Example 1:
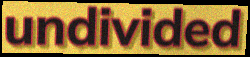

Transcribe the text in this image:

undivided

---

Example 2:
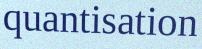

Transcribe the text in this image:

quantisation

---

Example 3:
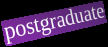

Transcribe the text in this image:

postgraduate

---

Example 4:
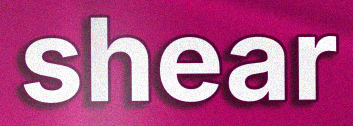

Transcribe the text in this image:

shear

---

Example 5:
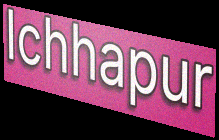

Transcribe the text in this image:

Ichhapur